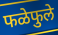
फळेफुले